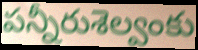
పన్నీరుశెల్వంకు